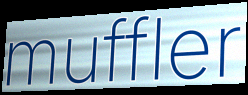
muffler